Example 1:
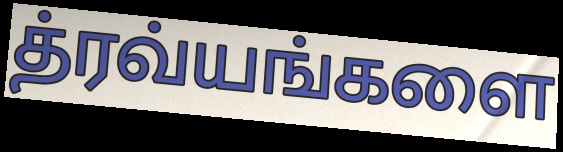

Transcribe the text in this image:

த்ரவ்யங்களை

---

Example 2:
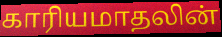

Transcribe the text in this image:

காரியமாதலின்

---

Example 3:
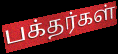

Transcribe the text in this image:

பக்தர்கள்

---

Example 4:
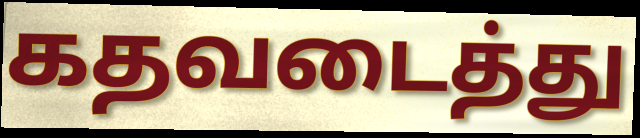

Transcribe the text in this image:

கதவடைத்து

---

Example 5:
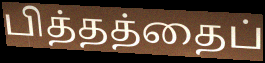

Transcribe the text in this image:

பித்தத்தைப்